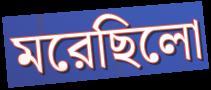
মরেছিলো